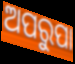
ଅପରୁପା